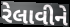
રેલાવીને